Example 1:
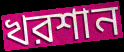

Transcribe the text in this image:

খরশান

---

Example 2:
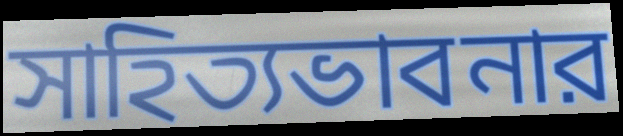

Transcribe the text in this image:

সাহিত্যভাবনার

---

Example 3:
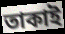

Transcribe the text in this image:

তাকাই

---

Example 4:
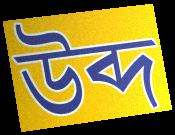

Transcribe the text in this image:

উব্দ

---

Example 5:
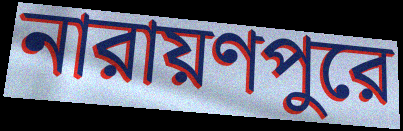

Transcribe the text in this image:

নারায়ণপুরে